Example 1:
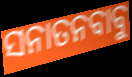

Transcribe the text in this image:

ସନାତନବାବୁ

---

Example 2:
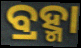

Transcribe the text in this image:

ବ୍ରହ୍ମା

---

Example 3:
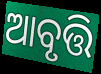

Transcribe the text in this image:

ଆବୃତ୍ତି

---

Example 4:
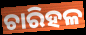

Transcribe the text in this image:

ଚାରିହଳ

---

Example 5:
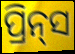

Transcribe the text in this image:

ପ୍ରିନ୍‍ସ